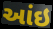
આંઇ